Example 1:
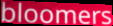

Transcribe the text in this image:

bloomers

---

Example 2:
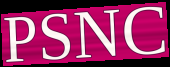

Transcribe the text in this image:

PSNC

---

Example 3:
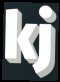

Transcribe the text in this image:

kj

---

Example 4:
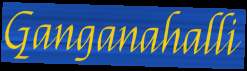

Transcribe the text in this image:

Ganganahalli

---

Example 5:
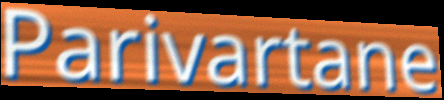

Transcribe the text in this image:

Parivartane